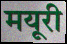
मयूरी